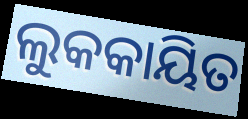
ଲୁକକାୟିତ